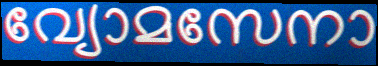
വ്യോമസേനാ